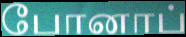
போனாப்